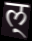
ल्